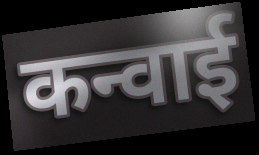
कन्वाई